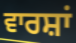
ਵਾਰਸ਼ਾਂ